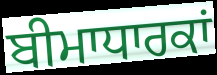
ਬੀਮਾਧਾਰਕਾਂ